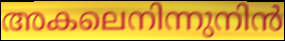
അകലെനിന്നുനിൻ